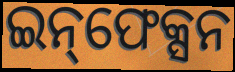
ଇନ୍‌ଫେକ୍ସନ